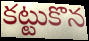
కట్టుకొన